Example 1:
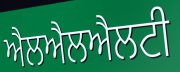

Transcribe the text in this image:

ਐਲਐਲਐਲਟੀ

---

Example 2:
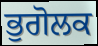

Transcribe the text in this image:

ਭੁਗੋਲਕ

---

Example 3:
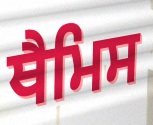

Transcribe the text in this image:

ਥੈਮਿਸ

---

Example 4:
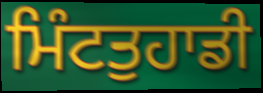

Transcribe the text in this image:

ਮਿੰਟਤੁਹਾਡੀ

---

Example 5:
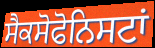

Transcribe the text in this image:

ਸੈਕਸੋਫੋਨਿਸਟਾਂ